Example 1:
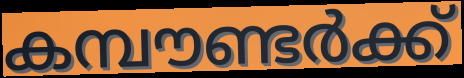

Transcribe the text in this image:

കമ്പൗണ്ടർക്ക്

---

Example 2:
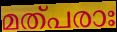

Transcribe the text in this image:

മത്പരാഃ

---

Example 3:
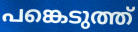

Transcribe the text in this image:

പങ്കെടുത്ത്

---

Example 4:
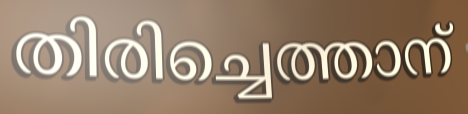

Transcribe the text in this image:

തിരിച്ചെത്താന്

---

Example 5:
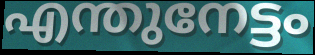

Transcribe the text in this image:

എന്തുനേട്ടം